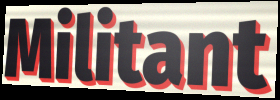
Militant